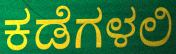
ಕಡೆಗಳಲಿ